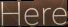
Here